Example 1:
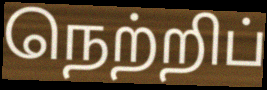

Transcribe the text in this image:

நெற்றிப்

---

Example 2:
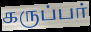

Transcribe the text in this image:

கருப்பர்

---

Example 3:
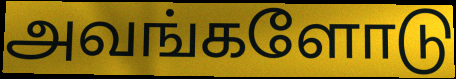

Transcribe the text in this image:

அவங்களோடு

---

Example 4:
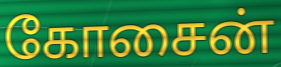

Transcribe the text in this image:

கோசைன்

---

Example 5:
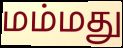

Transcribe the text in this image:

மம்மது